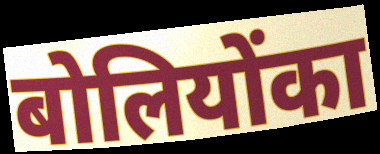
बोलियोंका